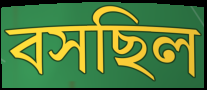
বসছিল